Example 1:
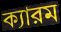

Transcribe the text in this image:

ক্যারম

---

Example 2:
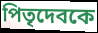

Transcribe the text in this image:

পিতৃদেবকে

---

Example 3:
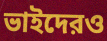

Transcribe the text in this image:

ভাইদেরও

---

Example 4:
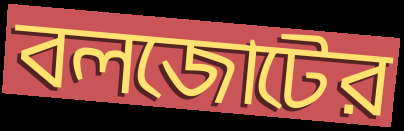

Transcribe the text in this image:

বলজোটের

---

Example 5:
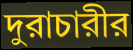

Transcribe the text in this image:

দুরাচারীর